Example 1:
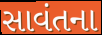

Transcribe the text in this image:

સાવંતના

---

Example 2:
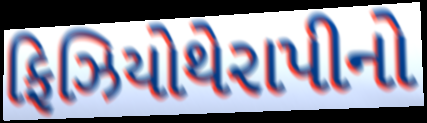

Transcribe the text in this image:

ફિઝિયોથેરાપીનો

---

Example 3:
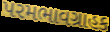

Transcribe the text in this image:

પરમભાવગ્રાહક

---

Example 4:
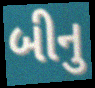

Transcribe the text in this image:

બીનુ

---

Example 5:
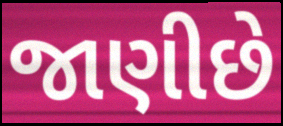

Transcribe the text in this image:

જાણીછે